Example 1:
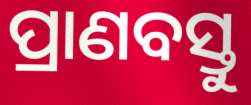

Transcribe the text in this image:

ପ୍ରାଣବସ୍ତୁ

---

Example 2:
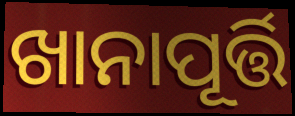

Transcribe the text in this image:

ଖାନାପୂର୍ତ୍ତି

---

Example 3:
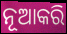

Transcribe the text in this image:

ନୂଆକରି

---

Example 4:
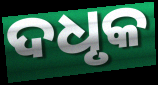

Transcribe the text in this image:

ଦଧୃକ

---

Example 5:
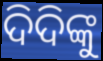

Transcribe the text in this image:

ଦିଦିଙ୍କୁ